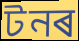
টনৰ